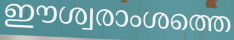
ഈശ്വരാംശത്തെ